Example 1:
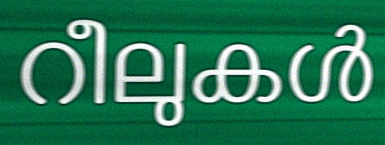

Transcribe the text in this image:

റീലുകൾ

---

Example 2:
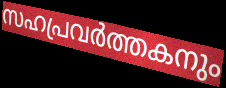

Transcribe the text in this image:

സഹപ്രവർത്തകനും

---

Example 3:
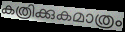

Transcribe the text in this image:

കത്രിക്കുകമാത്രം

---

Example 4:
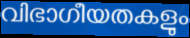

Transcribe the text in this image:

വിഭാഗീയതകളും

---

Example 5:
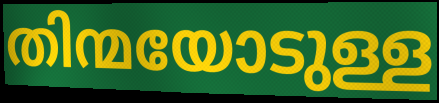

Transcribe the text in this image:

തിന്മയോടുള്ള